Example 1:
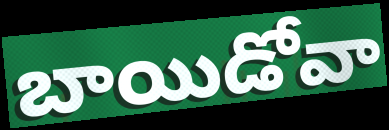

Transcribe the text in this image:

బాయిడోవా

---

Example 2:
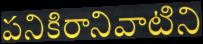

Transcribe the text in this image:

పనికిరానివాటిని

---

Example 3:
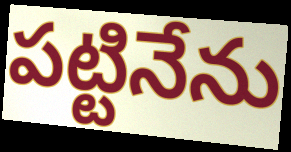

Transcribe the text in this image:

పట్టినేను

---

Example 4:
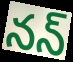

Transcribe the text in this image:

నన్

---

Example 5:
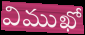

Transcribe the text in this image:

విముఖో